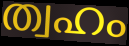
ത്വഹം